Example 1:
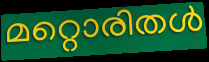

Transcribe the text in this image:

മറ്റൊരിതൾ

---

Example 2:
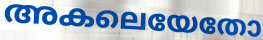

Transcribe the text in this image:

അകലെയേതോ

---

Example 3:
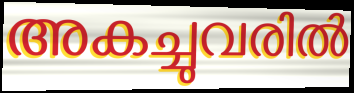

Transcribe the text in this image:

അകച്ചുവരിൽ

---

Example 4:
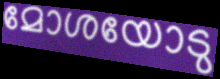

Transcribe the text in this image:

മോശയോടു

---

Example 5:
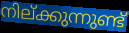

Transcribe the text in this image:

നില്ക്കുന്നുണ്ട്